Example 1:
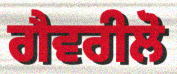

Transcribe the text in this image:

ਗੈਵਰੀਲੋ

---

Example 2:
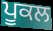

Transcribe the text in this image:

ਪੂਕਲ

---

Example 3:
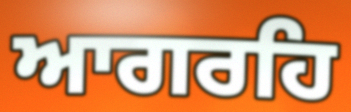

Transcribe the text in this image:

ਆਗਰਹਿ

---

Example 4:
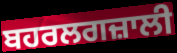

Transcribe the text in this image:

ਬਹਰਲਗਜ਼ਾਲੀ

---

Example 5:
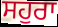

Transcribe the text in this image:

ਸਹੁਰਾ